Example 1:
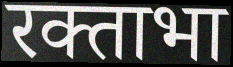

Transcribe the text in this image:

रक्ताभा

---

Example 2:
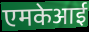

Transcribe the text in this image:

एमकेआई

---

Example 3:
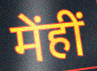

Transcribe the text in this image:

मेंहीं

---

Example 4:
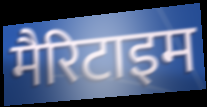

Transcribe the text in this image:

मैरिटाइम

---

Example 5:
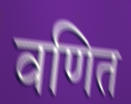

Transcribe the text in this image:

वणित